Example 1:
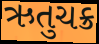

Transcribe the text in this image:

ઋતુચક્ર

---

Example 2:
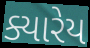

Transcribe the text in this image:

ક્યારેય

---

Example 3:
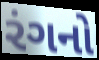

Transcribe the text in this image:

રંગનો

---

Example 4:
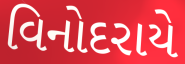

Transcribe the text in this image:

વિનોદરાયે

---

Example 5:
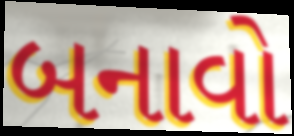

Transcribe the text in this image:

બનાવો